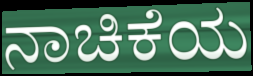
ನಾಚಿಕೆಯ